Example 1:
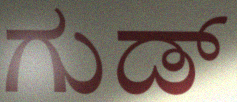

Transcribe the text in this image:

ಗುಡ್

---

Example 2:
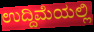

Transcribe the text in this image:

ಉದ್ದಿಮೆಯಲ್ಲಿ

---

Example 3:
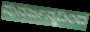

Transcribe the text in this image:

ಪುನರ್ಜನ್ಮದಿಂದ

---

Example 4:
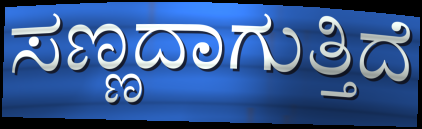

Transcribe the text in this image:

ಸಣ್ಣದಾಗುತ್ತಿದೆ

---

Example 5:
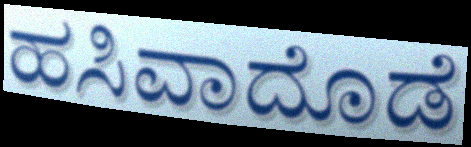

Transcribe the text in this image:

ಹಸಿವಾದೊಡೆ